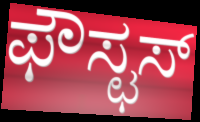
ಫೌಸ್ಟಸ್